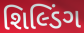
શિલ્ડિંગ